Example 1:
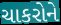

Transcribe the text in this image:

ચાકરોને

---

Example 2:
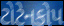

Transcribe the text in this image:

ટોટેનકોપ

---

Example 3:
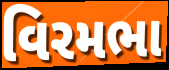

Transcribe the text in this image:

વિરમભા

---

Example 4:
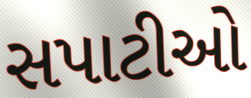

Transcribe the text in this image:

સપાટીઓ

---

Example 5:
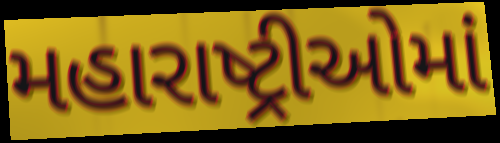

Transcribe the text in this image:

મહારાષ્ટ્રીઓમાં